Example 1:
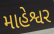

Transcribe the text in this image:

માહેશ્વર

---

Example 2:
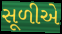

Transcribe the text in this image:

સૂળીએ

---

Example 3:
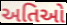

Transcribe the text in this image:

અતિઓ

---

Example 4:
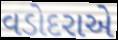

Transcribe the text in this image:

વડોદરાએ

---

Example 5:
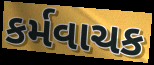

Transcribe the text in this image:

કર્મવાચક